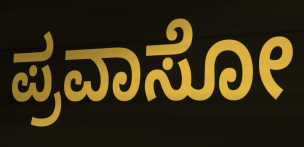
ಪ್ರವಾಸೋ